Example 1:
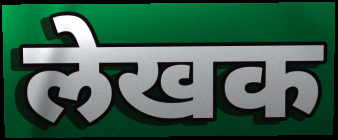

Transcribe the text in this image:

लेखक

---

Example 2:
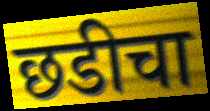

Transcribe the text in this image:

छडीचा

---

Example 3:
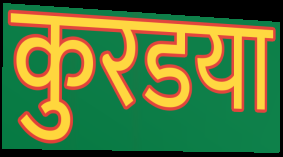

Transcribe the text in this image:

कुरडया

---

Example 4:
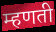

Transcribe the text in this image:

म्हणती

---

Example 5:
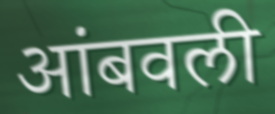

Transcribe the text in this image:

आंबवली